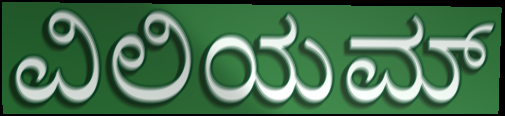
ವಿಲಿಯಮ್